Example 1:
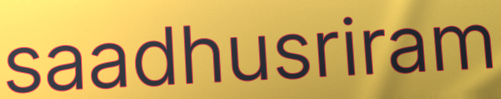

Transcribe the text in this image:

saadhusriram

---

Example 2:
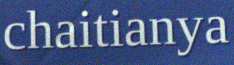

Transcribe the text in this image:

chaitianya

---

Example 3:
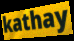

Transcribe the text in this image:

kathay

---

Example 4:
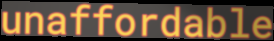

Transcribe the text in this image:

unaffordable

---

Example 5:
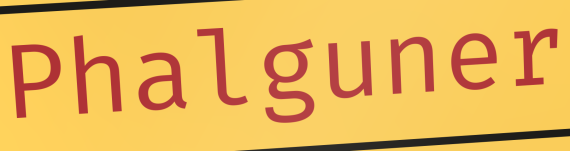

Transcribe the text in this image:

Phalguner